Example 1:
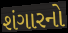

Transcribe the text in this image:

શંગારનો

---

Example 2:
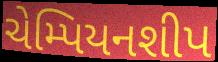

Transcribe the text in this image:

ચેમ્પિયનશીપ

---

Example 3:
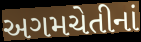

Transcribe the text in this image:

અગમચેતીનાં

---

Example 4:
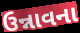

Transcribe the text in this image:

ઉન્નાવના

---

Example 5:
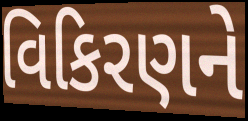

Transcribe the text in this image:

વિકિરણને